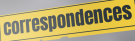
correspondences